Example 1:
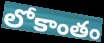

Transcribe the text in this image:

లోకాంతం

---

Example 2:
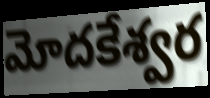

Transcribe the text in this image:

మోదకేశ్వర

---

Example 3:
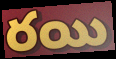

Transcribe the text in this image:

రయి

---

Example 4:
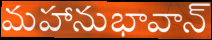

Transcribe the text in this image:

మహానుభావాన్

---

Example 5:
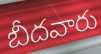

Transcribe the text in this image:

బీదవారు